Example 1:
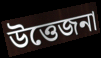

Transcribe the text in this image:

উত্তেজনা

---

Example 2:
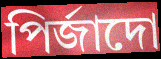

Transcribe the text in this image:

পিৰ্জাদো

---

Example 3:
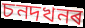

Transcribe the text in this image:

চনদখনৰ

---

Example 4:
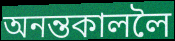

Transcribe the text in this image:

অনন্তকাললৈ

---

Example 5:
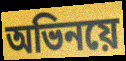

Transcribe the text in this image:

অভিনয়ে